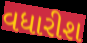
વધારીશ